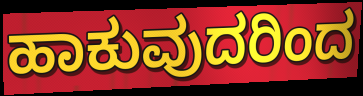
ಹಾಕುವುದರಿಂದ